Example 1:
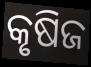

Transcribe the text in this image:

କୃଷିଜ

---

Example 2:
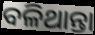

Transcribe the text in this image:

ବଳିଥାନ୍ତା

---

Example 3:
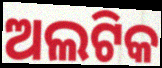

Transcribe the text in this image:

ଅଲଟିକ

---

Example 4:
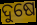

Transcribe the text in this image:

ଦୁଷେ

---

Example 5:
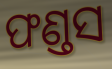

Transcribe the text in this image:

ଫଣ୍ଡସ